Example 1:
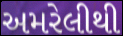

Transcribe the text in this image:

અમરેલીથી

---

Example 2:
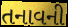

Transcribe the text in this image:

તનાવની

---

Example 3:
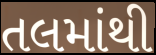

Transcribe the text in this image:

તલમાંથી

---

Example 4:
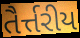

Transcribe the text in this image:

તૈર્ત્તરીય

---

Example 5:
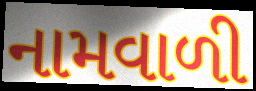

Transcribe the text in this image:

નામવાળી